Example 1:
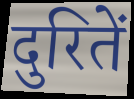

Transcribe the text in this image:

दुरितें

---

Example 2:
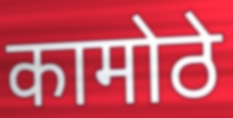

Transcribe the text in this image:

कामोठे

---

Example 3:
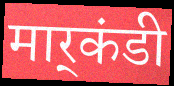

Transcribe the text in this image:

मार्कंडी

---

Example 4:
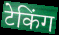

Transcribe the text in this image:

टेकिंग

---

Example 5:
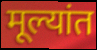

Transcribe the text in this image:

मूल्यांत